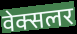
वेक्सलर